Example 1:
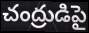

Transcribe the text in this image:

చంద్రుడిపై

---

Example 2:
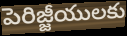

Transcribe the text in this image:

పెరిజ్జీయులకు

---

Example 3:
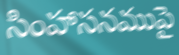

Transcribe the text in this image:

సింహాసనముపై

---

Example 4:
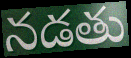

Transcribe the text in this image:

నడతు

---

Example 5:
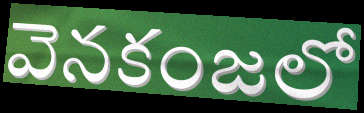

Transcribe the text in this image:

వెనకంజలో